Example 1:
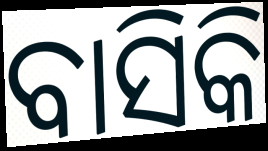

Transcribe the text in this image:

ବାସିକି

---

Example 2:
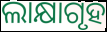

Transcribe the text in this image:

ଲାକ୍ଷାଗୃହ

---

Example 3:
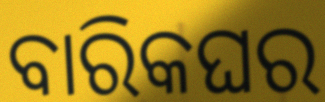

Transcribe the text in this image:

ବାରିକଘର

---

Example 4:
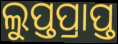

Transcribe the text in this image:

ଲୁପ୍ତପ୍ରାପ୍ତ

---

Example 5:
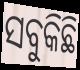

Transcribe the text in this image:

ସବୁକିଛି